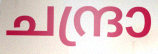
ചന്ദ്രാ